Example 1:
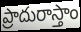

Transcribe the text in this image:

ప్రాదురాస్తాం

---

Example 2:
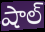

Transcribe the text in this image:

షాల్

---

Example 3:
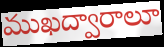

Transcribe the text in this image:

ముఖద్వారాలూ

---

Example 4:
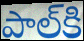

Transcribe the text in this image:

పాల్‌కి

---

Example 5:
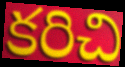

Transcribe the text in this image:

కరిచి